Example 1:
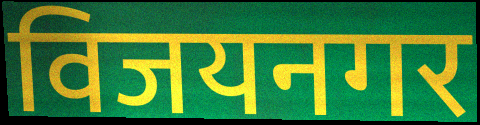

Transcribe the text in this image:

विजयनगर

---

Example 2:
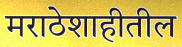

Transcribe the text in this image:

मराठेशाहीतील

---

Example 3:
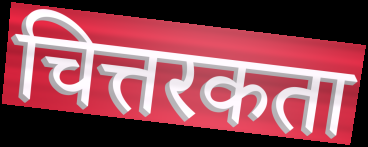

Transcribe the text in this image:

चित्तरकता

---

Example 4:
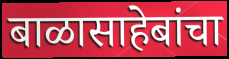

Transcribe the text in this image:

बाळासाहेबांचा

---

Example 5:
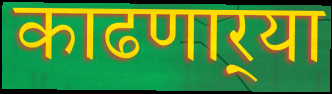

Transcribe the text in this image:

काढणार्या